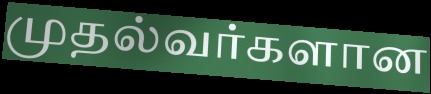
முதல்வர்களான